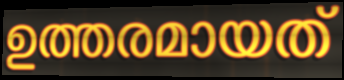
ഉത്തരമായത്